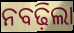
ନବଢ଼ିଲା